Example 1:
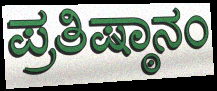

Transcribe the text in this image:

ಪ್ರತಿಷ್ಠಾನಂ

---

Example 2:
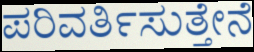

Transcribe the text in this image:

ಪರಿವರ್ತಿಸುತ್ತೇನೆ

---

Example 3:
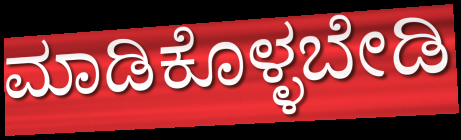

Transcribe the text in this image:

ಮಾಡಿಕೊಳ್ಳಬೇಡಿ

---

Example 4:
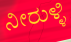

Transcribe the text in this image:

ನೀರುಳ್ಳಿ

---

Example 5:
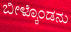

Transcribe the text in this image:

ಬೀಳ್ಕೊಂಡನು